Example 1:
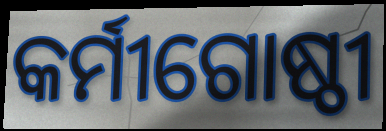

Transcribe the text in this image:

କର୍ମୀଗୋଷ୍ଠୀ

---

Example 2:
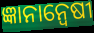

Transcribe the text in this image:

ଜ୍ଞାନାନ୍ୱେଷୀ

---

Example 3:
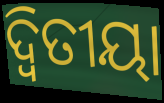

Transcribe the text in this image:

ଦ୍ଵିତୀୟା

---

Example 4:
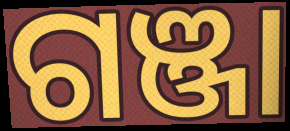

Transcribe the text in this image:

ଗଞ୍ଜା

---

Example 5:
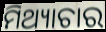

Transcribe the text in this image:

ମିଥ୍ୟାଚାର